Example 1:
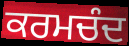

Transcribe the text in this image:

ਕਰਮਚੰਦ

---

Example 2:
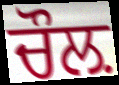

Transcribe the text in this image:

ਚੌਲ਼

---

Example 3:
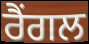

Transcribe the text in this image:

ਰੈਂਗਲ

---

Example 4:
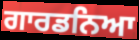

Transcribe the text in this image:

ਗਾਰਡਨਿਆ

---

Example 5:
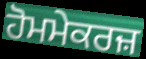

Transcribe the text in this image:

ਹੋਮਮੇਕਰਜ਼